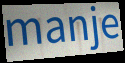
manje